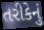
તરીકેનું